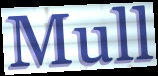
Mull